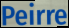
Peirre